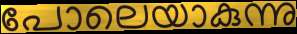
പോലെയാകുന്നു